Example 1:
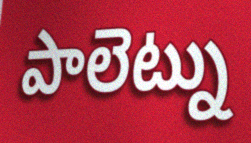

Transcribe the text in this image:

పాలెట్ను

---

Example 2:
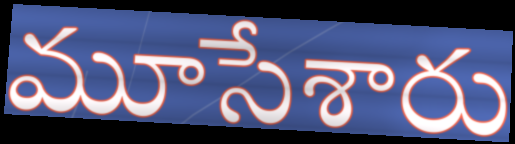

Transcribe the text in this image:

మూసేశారు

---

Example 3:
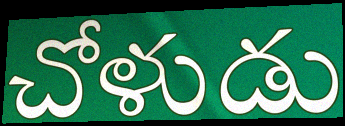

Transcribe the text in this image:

చోళుడు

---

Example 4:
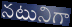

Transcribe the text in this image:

నటునిగా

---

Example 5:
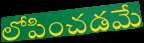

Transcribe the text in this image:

లోపించడమే